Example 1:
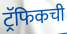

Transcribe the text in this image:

ट्रॅफिकची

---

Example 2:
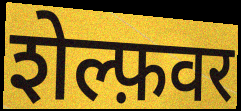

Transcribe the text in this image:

शेल्फ़वर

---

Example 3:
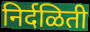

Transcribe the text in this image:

निर्दळिती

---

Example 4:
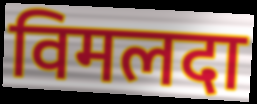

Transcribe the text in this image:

विमलदा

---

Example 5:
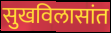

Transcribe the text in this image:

सुखविलासांत